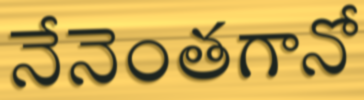
నేనెంతగానో